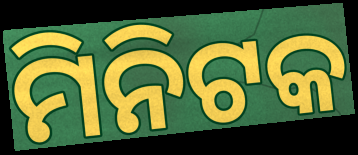
ମିନିଟକ